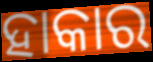
ହାକାର